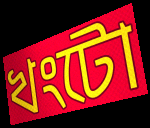
খংটো